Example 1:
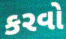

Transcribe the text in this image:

કરવો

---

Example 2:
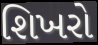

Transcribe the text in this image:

શિખરો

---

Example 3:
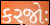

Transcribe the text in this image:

કરજોઃ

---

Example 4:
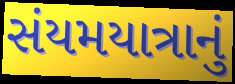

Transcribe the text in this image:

સંયમયાત્રાનું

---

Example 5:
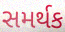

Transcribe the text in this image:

સમર્થક